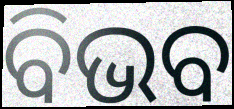
ବିଭବ